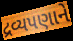
દ્રવ્યપણાને